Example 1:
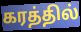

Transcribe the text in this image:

கரத்தில்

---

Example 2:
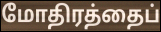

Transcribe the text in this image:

மோதிரத்தைப்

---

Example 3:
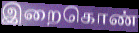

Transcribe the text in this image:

இறைகொண்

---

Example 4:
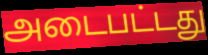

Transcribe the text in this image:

அடைபட்டது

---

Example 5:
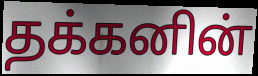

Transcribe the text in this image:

தக்கனின்